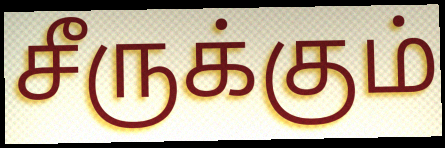
சீருக்கும்